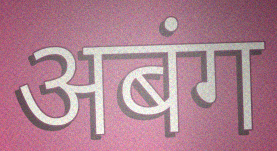
अबंग